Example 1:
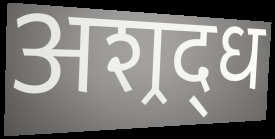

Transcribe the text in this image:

अश्रद्ध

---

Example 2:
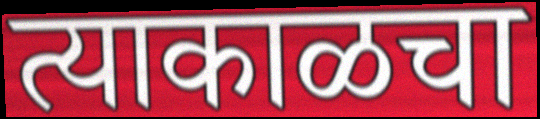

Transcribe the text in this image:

त्याकाळचा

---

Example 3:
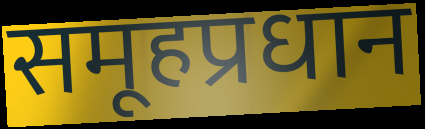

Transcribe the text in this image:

समूहप्रधान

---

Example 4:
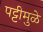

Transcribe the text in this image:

पट्टीमुळे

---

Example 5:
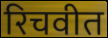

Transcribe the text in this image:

रिचवीत